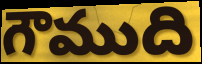
గౌముది